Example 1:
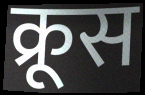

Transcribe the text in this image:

क्रूस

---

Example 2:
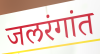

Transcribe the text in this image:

जलरंगांत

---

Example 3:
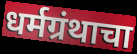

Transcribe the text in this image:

धर्मग्रंथाचा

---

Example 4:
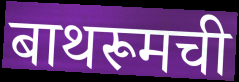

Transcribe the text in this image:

बाथरूमची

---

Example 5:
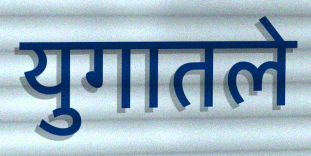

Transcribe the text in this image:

युगातले